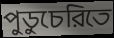
পুডুচেরিতে